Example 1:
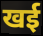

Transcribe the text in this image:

खई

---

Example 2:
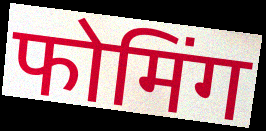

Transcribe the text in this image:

फोमिंग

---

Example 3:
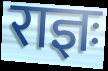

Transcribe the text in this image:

राज्ञः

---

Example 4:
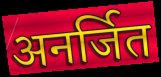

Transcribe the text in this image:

अनर्जित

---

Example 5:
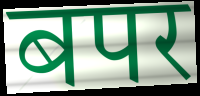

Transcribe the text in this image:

बपर